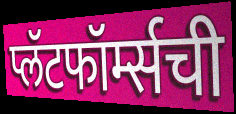
प्लॅटफॉर्म्सची